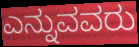
ಎನ್ನುವವರು